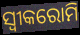
ସ୍ଵୀକରୋମି